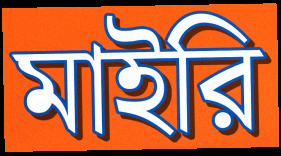
মাইরি